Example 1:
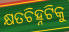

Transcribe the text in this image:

କ୍ଷତଚିହ୍ନଟିକୁ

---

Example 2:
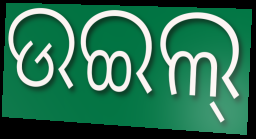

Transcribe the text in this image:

ଉଇଲ୍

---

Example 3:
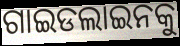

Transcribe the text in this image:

ଗାଇଡଲାଇନକୁ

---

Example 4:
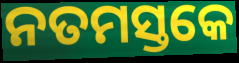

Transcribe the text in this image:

ନତମସ୍ତକେ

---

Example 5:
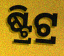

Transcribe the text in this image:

ଷ୍ଟ୍ରିଟ୍ର